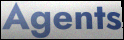
Agents